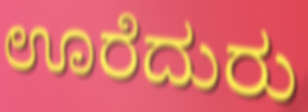
ಊರೆದುರು